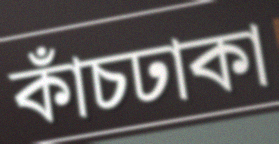
কাঁচঢাকা